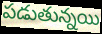
పడుతున్నయి